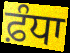
ਫ਼ੰਧਾ